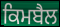
ਕਿਮਬੈਲ